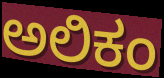
ಅಲಿಕಂ